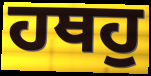
ਹਥਹੁ